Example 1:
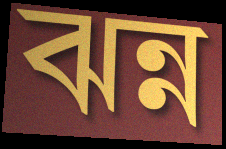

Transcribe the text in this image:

ঝন্ন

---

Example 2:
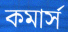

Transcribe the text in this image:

কমার্স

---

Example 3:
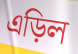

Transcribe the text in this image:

এড়িল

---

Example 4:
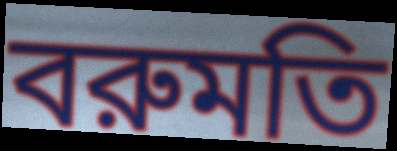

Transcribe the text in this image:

বরুমতি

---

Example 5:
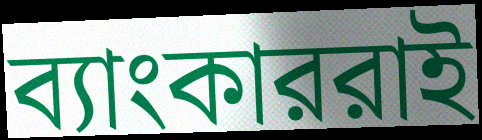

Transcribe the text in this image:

ব্যাংকাররাই